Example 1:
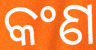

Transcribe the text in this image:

କଂଣ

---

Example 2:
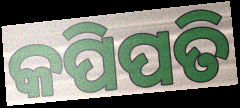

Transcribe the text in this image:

କପିପତି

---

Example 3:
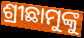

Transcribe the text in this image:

ଶ୍ରୀଛାମୁଙ୍କୁ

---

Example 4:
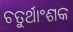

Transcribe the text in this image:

ଚତୁର୍ଥାଂଶକ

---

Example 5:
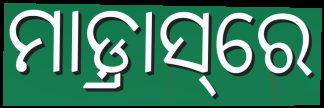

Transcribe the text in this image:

ମାଡ଼୍ରାସ୍‌ରେ